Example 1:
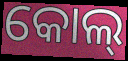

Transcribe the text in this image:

କୋଲ୍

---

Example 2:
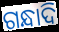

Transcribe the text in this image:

ଗନ୍ଧାଦି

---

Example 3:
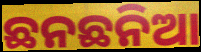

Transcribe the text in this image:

ଛନଛନିଆ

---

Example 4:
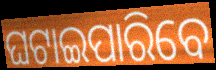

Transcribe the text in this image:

ଘଟାଇପାରିବେ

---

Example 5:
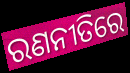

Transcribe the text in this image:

ରଣନୀତିରେ